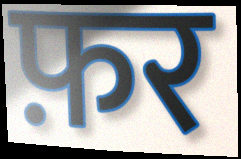
फ़र